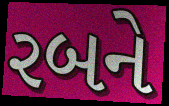
રબને